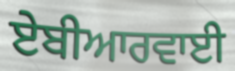
ਏਬੀਆਰਵਾਈ